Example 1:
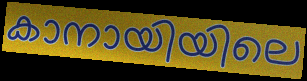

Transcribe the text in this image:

കാനായിയിലെ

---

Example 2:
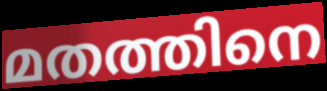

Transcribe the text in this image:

മതത്തിനെ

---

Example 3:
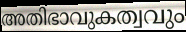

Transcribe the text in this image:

അതിഭാവുകത്വവും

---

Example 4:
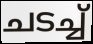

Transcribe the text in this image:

ചടച്ച്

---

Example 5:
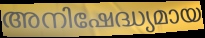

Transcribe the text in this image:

അനിഷേദ്ധ്യമായ